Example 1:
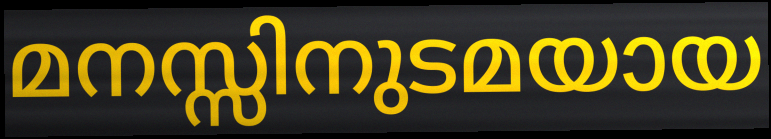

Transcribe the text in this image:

മനസ്സിനുടമയായ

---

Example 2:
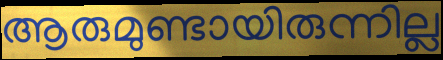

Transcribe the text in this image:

ആരുമുണ്ടായിരുന്നില്ല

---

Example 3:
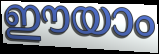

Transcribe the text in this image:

ഈയാം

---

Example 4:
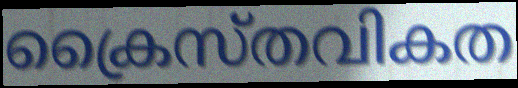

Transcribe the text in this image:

ക്രൈസ്തവികത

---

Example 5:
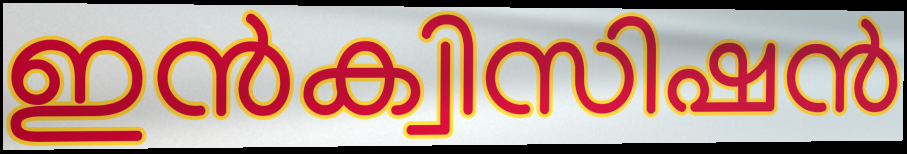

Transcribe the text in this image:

ഇൻക്വിസിഷൻ